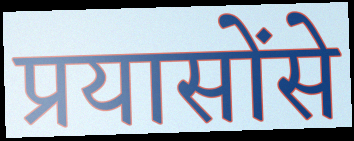
प्रयासोंसे